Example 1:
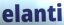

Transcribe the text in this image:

elanti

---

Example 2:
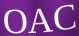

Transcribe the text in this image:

OAC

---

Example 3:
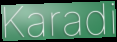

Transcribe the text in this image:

Karadi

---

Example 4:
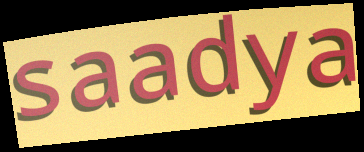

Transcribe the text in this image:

saadya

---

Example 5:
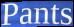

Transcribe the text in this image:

Pants